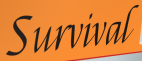
Survival